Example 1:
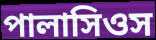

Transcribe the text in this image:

পালাসিওস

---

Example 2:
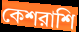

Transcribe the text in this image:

কেশরাশি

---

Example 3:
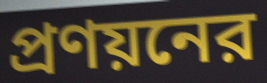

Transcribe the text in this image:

প্রণয়নের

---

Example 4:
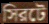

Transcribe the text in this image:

সিরটে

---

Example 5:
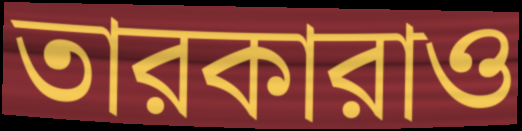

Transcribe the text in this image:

তারকারাও